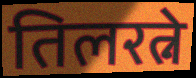
तिलरत्ने